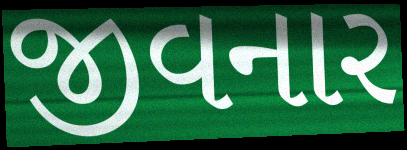
જીવનાર